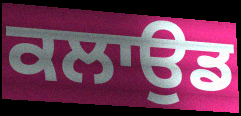
ਕਲਾਉਡ